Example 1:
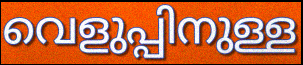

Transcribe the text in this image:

വെളുപ്പിനുള്ള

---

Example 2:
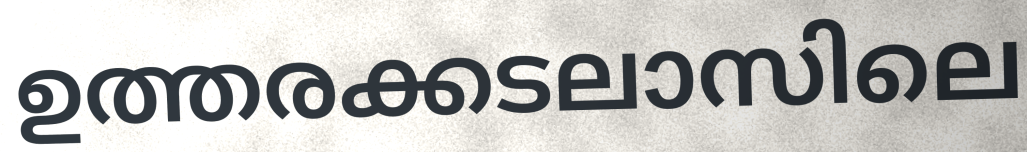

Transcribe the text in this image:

ഉത്തരക്കടലാസിലെ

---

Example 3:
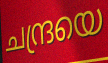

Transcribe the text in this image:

ചന്ദ്രയെ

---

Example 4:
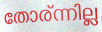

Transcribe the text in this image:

തോര്ന്നില്ല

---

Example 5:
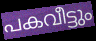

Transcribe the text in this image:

പകവീട്ടും